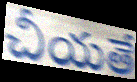
చీయతే